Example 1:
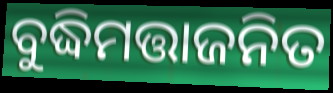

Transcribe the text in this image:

ବୁଦ୍ଧିମତ୍ତାଜନିତ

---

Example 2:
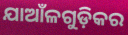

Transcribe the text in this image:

ଯାଆଁଳଗୁଡ଼ିକର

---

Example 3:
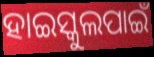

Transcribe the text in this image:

ହାଇସ୍କୁଲପାଇଁ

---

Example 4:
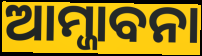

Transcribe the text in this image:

ଆମ୍ଜାବନା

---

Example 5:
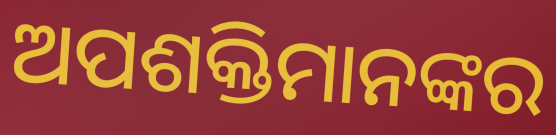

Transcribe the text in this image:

ଅପଶକ୍ତିମାନଙ୍କର